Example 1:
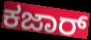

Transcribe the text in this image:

ಕಜಾರ್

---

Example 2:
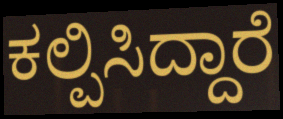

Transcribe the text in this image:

ಕಲ್ಪಿಸಿದ್ದಾರೆ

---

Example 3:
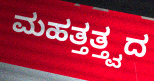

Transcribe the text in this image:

ಮಹತ್ತತ್ತ್ವದ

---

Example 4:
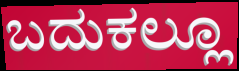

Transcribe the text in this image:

ಬದುಕಲ್ಲೂ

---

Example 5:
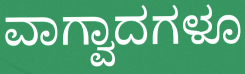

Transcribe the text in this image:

ವಾಗ್ವಾದಗಳೂ